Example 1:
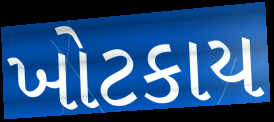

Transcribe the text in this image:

ખોટકાય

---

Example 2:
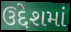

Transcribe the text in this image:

ઉદ્દેશમાં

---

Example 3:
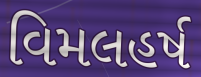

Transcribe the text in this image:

વિમલહર્ષ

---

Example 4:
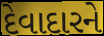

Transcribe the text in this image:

દેવાદારને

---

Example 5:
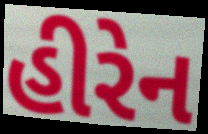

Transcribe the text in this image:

હીરેન